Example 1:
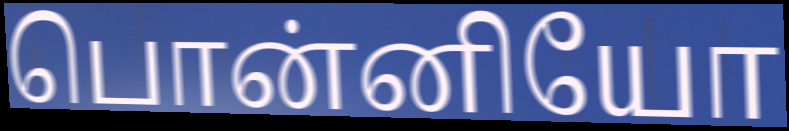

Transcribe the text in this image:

பொன்னியோ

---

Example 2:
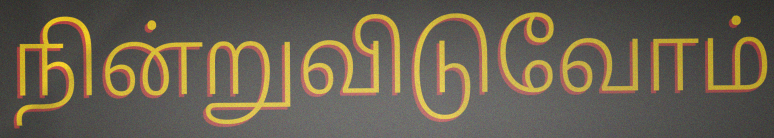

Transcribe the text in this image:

நின்றுவிடுவோம்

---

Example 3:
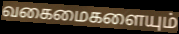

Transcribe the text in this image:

வகைமைகளையும்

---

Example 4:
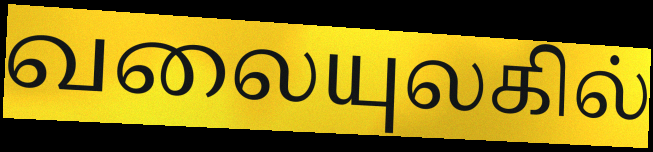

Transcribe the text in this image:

வலையுலகில்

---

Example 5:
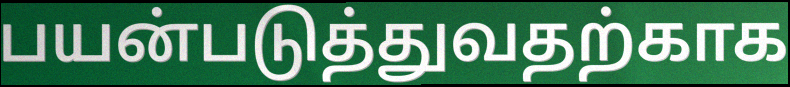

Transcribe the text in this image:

பயன்படுத்துவதற்காக